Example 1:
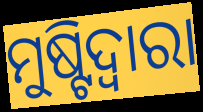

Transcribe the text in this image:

ମୁଷ୍ଟିଦ୍ୱାରା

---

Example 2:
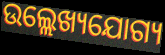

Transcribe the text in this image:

ଉଲ୍ଲେଖ୍ୟଯୋଗ୍ୟ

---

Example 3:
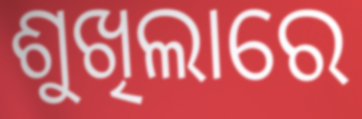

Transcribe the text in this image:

ଶୁଖିଲାରେ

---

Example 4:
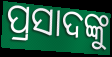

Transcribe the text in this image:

ପ୍ରସାଦଙ୍କୁ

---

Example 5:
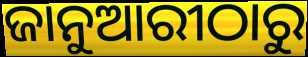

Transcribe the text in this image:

ଜାନୁଆରୀଠାରୁ